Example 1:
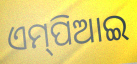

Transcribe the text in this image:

ଏମ୍‌ପିଆଇ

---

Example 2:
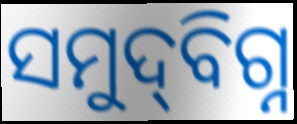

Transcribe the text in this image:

ସମୁଦ୍‌ବିଗ୍ନ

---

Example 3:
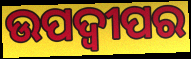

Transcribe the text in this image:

ଉପଦ୍ୱୀପର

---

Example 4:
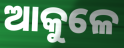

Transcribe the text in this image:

ଆକୁଳେ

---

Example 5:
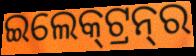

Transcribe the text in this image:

ଇଲେକ୍‍ଟ୍ରନ୍‍ର